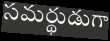
సమర్థుడుగా